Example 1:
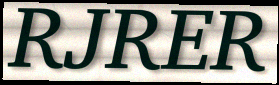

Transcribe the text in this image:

RJRER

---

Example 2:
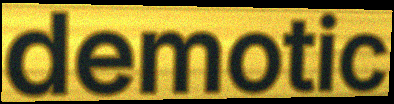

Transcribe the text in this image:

demotic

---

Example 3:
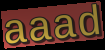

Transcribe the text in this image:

aaad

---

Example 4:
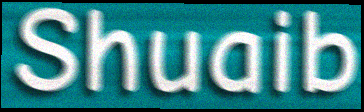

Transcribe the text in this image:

Shuaib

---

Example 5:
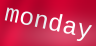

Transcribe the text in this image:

monday